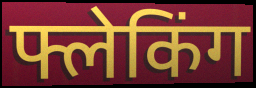
फ्लेकिंग